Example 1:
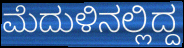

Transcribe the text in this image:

ಮೆದುಳಿನಲ್ಲಿದ್ದ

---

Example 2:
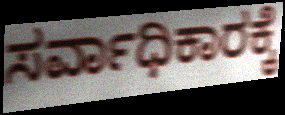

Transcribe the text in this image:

ಸರ್ವಾಧಿಕಾರಕ್ಕೆ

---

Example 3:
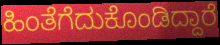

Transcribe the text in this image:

ಹಿಂತೆಗೆದುಕೊಂಡಿದ್ದಾರೆ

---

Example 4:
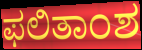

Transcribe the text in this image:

ಫಲಿತಾಂಶ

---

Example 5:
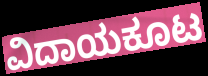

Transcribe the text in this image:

ವಿದಾಯಕೂಟ